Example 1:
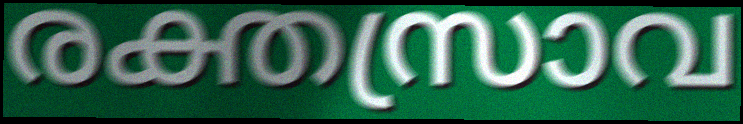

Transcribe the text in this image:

രക്തസ്രാവ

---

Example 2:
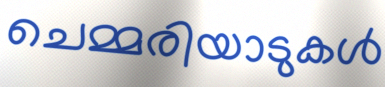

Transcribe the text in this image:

ചെമ്മരിയാടുകൾ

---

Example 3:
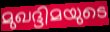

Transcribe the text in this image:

മുഖദ്ദിമയുടെ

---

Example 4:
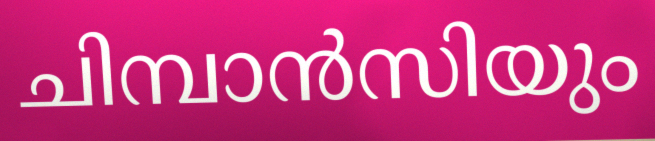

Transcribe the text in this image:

ചിമ്പാൻസിയും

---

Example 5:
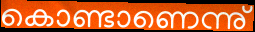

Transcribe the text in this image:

കൊണ്ടാണെന്നു്